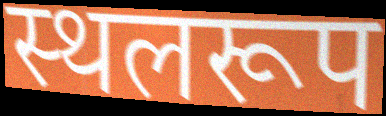
स्थलरूप